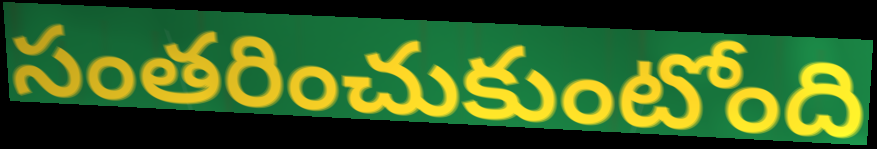
సంతరించుకుంటోంది